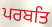
ਪਰਬਤਿ